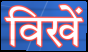
विखें